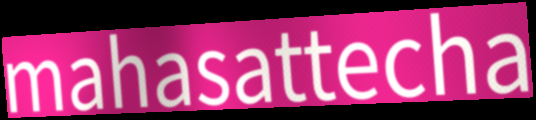
mahasattecha